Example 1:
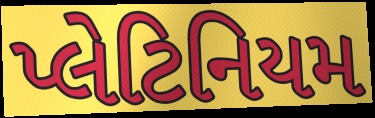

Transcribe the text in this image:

પ્લેટિનિયમ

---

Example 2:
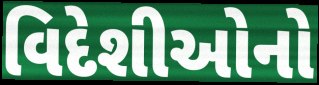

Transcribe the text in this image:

વિદેશીઓનો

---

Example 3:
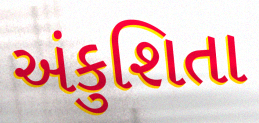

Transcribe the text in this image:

અંકુશિતા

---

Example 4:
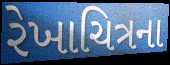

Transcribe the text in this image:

રેખાચિત્રના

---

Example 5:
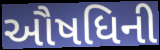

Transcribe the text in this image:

ઔષધિની